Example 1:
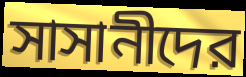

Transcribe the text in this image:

সাসানীদের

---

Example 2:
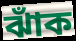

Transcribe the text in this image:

ঝাঁক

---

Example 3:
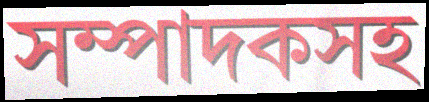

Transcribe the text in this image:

সম্পাদকসহ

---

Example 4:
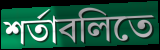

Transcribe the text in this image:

শর্তাবলিতে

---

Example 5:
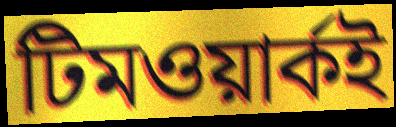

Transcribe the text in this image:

টিমওয়ার্কই